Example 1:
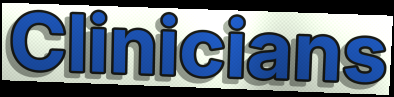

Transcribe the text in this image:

Clinicians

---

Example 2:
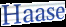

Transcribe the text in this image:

Haase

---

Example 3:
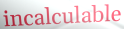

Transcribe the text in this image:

incalculable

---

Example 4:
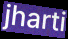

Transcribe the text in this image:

jharti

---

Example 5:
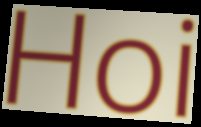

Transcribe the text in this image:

Hoi